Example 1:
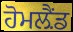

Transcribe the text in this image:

ਹੋਮਲ਼ੈਂਡ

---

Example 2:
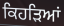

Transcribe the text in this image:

ਕਿਹੜਿਆਂ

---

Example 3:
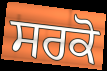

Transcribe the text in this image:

ਸਰਕੋ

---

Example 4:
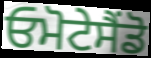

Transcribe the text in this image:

ਓਮੋਟੇਸੈਂਡੋ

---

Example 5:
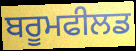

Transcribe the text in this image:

ਬਰੂਮਫੀਲਡ